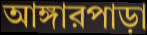
আঙ্গারপাড়া